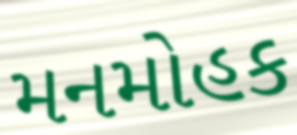
મનમોહક